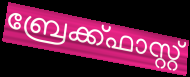
ബ്രേക്ക്ഫാസ്റ്റ്